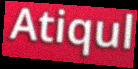
Atiqul